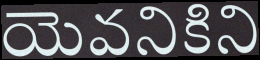
యెవనికిని